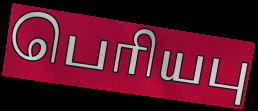
பெரியபு